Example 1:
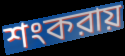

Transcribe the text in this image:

শংকরায়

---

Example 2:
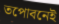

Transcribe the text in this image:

তপোবনেই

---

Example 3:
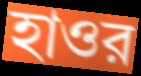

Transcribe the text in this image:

হাওর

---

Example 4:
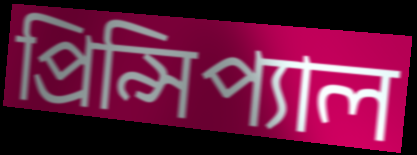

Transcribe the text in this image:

প্রিন্সিপ্যাল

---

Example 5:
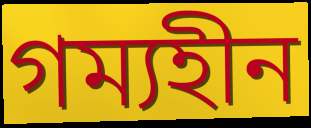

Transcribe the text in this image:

গম্যহীন